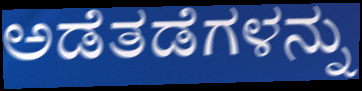
ಅಡೆತಡೆಗಳನ್ನು